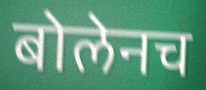
बोलेनच